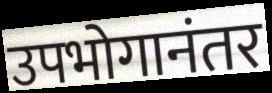
उपभोगानंतर